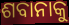
ଶବାନାକୁ